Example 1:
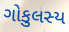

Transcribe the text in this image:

ગોકુલસ્ય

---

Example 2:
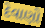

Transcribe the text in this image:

દેવાણો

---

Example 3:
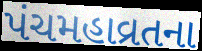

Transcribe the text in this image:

પંચમહાવ્રતના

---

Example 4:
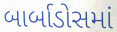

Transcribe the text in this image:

બાર્બાડોસમાં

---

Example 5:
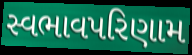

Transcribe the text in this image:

સ્વભાવપરિણામ